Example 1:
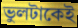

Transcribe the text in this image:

ভুলটাকেই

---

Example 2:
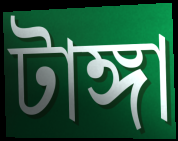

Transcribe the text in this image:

টাঙ্গা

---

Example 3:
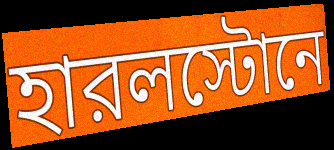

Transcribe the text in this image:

হারলস্টোনে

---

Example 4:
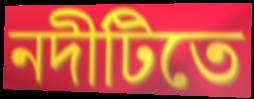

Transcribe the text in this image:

নদীটিতে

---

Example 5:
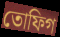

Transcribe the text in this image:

তোফিগ